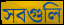
সবগুলি